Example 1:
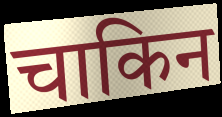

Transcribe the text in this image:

चाकिन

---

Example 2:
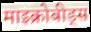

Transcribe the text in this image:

माइक्रोबीड्स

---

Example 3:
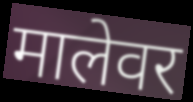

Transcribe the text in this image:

मालेवर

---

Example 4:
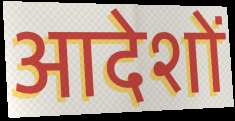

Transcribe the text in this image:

आदेशों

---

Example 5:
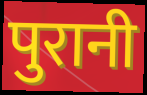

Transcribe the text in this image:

पुरानी